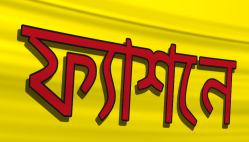
ফ্যাশনে